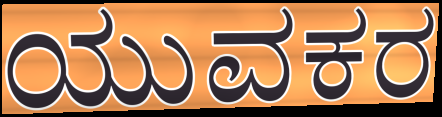
ಯುವಕರ